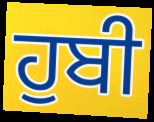
ਹੁਬੀ